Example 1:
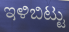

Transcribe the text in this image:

ಇಳಿಬಿಟ್ಟು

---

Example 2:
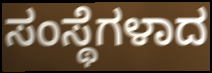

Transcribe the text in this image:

ಸಂಸ್ಥೆಗಳಾದ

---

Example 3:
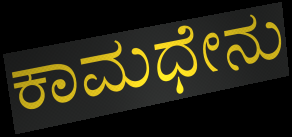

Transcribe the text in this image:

ಕಾಮಧೇನು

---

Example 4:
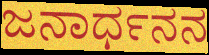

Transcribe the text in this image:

ಜನಾರ್ಧನನ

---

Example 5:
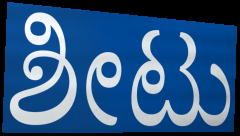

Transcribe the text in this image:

ಶೀಟು